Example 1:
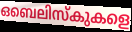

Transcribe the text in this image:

ഒബെലിസ്കുകളെ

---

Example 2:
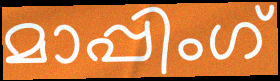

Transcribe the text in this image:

മാപ്പിംഗ്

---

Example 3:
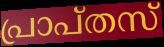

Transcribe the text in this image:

പ്രാപ്തസ്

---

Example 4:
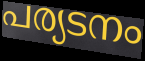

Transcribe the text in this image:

പര്യടനം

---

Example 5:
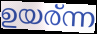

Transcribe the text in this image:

ഉയര്ന്ന